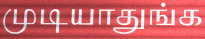
முடியாதுங்க